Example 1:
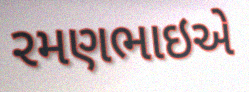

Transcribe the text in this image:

રમણભાઇએ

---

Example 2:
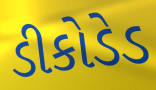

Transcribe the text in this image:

ડીકોડેડ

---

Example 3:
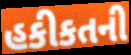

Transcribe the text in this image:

હકીકતની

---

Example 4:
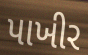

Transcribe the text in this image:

પાખીર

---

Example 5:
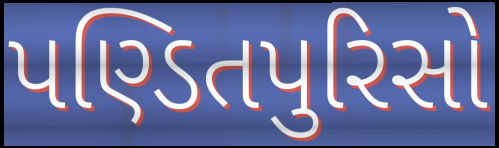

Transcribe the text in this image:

પણ્ડિતપુરિસો